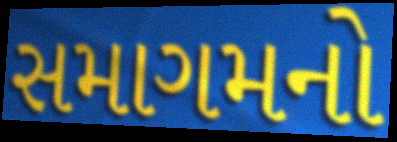
સમાગમનો